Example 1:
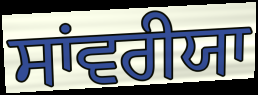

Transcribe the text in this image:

ਸਾਂਵਰੀਯਾ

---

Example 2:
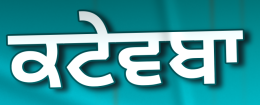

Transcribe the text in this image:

ਕਟੇਵਬਾ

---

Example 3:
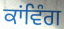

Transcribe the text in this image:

ਕਾਂਵਿੰਗ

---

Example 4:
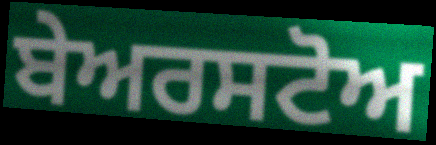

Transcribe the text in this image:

ਬੇਅਰਸਟੋਅ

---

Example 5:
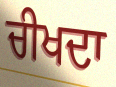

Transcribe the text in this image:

ਚੀਖਦਾ